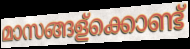
മാസങ്ങള്ക്കൊണ്ട്